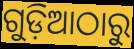
ଗୁଡ଼ିଆଠାରୁ